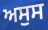
ਅਸੁਸ